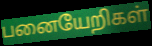
பனையேறிகள்